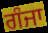
ਗੰਜਾ